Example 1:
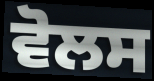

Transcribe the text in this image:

ਵੋਲਸ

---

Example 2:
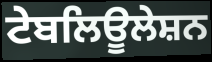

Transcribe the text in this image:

ਟੇਬਲਿਊਲੇਸ਼ਨ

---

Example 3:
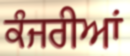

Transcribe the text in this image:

ਕੰਜਰੀਆਂ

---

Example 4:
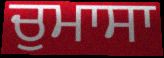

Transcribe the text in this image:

ਚੁਮਾਸਾ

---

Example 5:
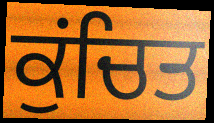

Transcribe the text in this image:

ਕੁਂਚਿਤ